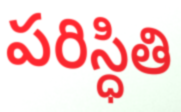
పరిస్ధితి